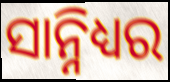
ସାନ୍ନିଧ୍ୟର